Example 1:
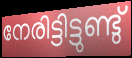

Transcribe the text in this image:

നേരിട്ടിട്ടുണ്ടു്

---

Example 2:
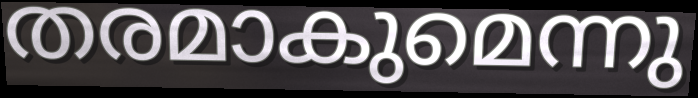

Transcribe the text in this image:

തരമാകുമെന്നു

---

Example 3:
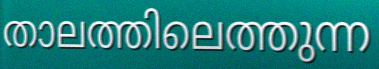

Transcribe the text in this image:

താലത്തിലെത്തുന്ന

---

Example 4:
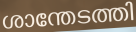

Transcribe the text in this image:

ശാന്തേടത്തി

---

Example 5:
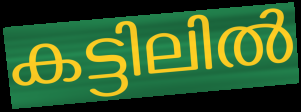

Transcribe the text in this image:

കട്ടിലിൽ